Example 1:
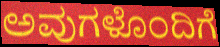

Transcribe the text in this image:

ಅವುಗಳೊಂದಿಗೆ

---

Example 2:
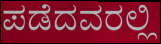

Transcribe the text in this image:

ಪಡೆದವರಲ್ಲಿ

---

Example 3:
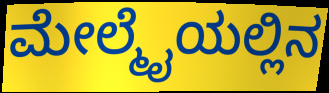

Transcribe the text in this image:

ಮೇಲ್ಮೈಯಲ್ಲಿನ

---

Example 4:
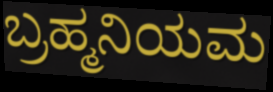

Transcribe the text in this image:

ಬ್ರಹ್ಮನಿಯಮ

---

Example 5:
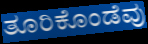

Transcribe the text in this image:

ತೂರಿಕೊಂಡೆವು